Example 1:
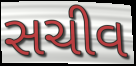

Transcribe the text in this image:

સચીવ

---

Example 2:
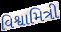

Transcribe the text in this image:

વિશ્વામિત્રી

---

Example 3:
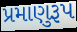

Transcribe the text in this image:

પ્રમાણુરૂપ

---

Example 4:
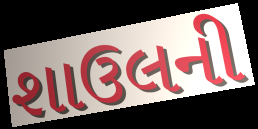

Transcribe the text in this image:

શાઉલની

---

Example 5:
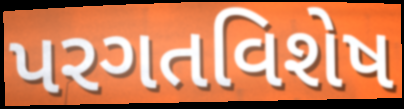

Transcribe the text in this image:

પરગતવિશેષ